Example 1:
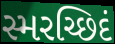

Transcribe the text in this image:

સ્મરચ્છિદં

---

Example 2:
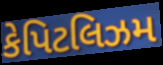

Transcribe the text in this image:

કેપિટલિઝમ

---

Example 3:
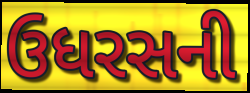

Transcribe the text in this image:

ઉધરસની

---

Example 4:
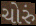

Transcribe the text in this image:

ચોરું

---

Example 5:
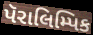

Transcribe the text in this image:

પૅરાલિમ્પિક